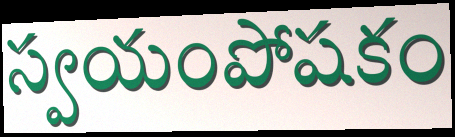
స్వయంపోషకం